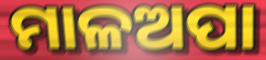
ମାଳଅପା